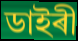
ডাইৰী